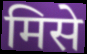
मिसे